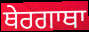
ਥੇਰਗਾਥਾ